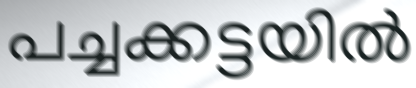
പച്ചക്കട്ടയിൽ